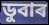
ডুবাৰ